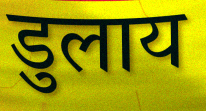
डुलाय